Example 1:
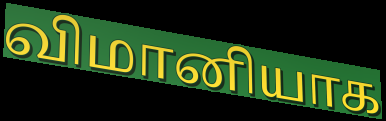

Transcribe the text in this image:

விமானியாக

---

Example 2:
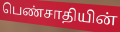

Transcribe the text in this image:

பெண்சாதியின்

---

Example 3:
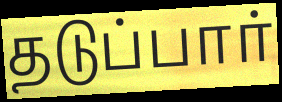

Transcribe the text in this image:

தடுப்பார்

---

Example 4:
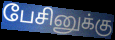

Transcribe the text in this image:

பேசினுக்கு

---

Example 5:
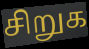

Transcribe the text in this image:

சிறுக